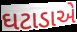
ઘટાડાએ